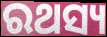
ରଥସ୍ୟ